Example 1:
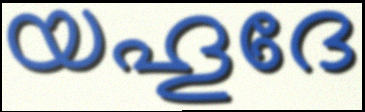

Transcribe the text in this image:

യഹൂദേ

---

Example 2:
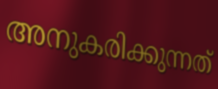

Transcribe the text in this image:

അനുകരിക്കുന്നത്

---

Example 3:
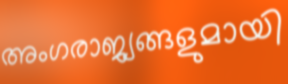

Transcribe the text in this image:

അംഗരാജ്യങ്ങളുമായി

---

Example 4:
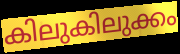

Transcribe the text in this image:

കിലുകിലുക്കം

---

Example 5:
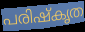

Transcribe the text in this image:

പരിഷ്കൃത